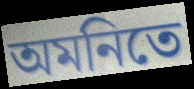
অমনিতে